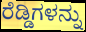
ರೆಡ್ಡಿಗಳನ್ನು